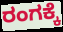
ರಂಗಕ್ಕೆ